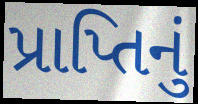
પ્રાપ્‍તિનું